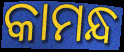
କାମନ୍ଧ